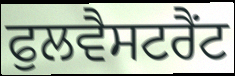
ਫੁਲਵੈਸਟਰੈਂਟ